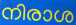
നിരാശ